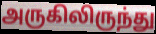
அருகிலிருந்து